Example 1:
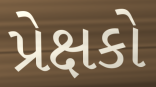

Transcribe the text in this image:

પ્રેક્ષકો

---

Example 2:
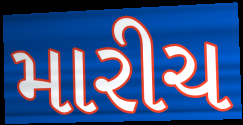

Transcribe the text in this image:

મારીચ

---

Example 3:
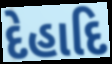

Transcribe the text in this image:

દેહાદિ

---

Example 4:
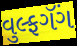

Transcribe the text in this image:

વુલ્ફગૅંગ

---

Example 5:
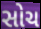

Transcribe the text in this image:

સોચ